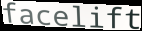
facelift